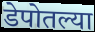
डेपोतल्या